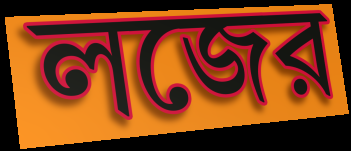
লজের